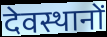
देवस्थानों